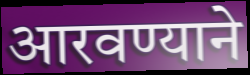
आरवण्याने